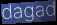
dagad